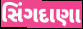
સિંગદાણા